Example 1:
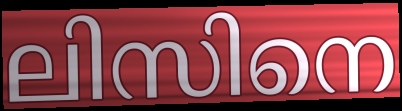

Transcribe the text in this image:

ലിസിനെ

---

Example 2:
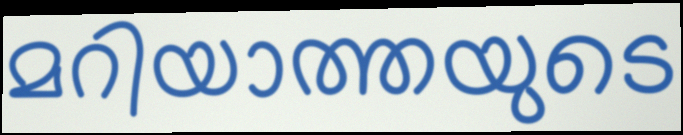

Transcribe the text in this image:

മറിയാത്തയുടെ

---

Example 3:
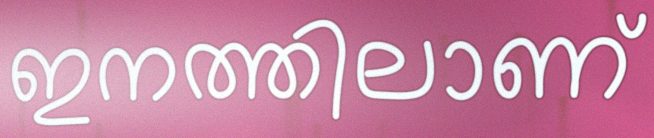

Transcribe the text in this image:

ഇനത്തിലാണ്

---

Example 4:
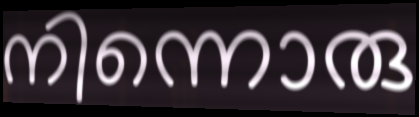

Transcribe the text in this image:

നിന്നൊരു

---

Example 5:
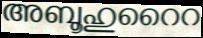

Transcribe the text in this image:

അബൂഹുറൈറ